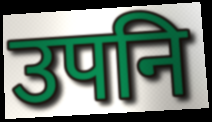
उपनि